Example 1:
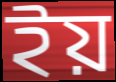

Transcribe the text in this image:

ইয়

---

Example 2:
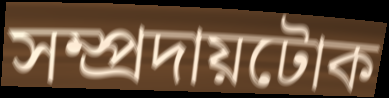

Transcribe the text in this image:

সম্প্ৰদায়টোক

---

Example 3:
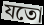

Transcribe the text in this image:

যতো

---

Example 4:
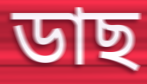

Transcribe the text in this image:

ডাছ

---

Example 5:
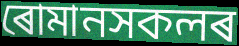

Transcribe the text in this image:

ৰোমানসকলৰ